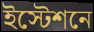
ইস্টেশনে